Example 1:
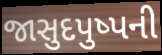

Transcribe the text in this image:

જાસુદપુષ્પની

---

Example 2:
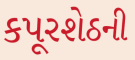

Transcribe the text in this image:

કપૂરશેઠની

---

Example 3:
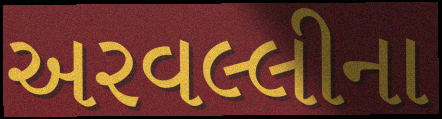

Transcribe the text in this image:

અરવલ્લીના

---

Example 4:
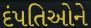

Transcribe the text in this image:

દંપતિઓને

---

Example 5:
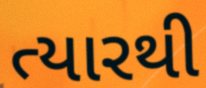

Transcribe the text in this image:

ત્યારથી